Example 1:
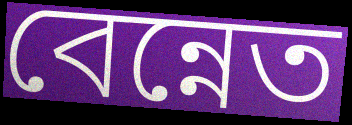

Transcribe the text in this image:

বেন্নেত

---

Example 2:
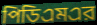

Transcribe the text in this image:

পিডিএমএর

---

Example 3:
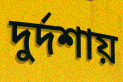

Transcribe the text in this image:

দুর্দশায়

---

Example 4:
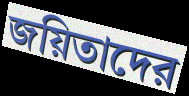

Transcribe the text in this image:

জয়িতাদের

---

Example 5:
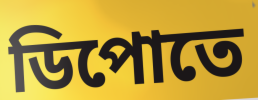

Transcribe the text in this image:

ডিপোতে